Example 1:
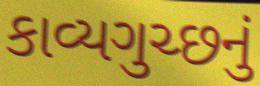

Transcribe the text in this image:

કાવ્યગુચ્છનું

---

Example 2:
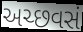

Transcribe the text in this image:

અચ્છવસં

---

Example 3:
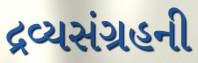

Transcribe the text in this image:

દ્રવ્યસંગ્રહની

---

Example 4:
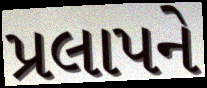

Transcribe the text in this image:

પ્રલાપને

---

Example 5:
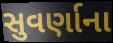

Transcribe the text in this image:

સુવર્ણાના